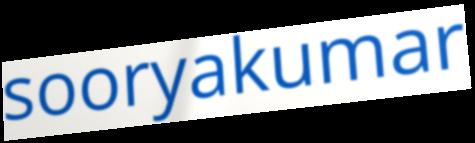
sooryakumar